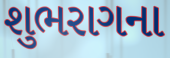
શુભરાગના